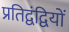
प्रतिद्वंद्वियों